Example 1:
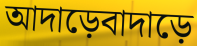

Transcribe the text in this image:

আদাড়েবাদাড়ে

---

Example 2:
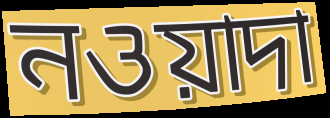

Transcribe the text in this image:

নওয়াদা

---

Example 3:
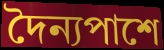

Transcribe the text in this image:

দৈন্যপাশে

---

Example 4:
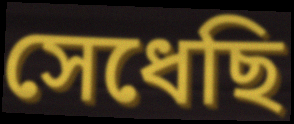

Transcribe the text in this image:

সেধেছি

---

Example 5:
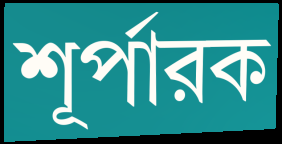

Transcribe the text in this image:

শূর্পারক